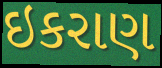
ઇકરાણ